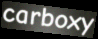
carboxy